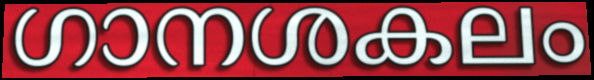
ഗാനശകലം